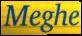
Meghe